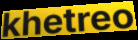
khetreo